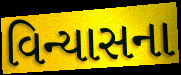
વિન્યાસના